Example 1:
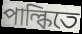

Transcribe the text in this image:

পাল্কিতে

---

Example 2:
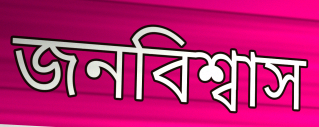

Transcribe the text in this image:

জনবিশ্বাস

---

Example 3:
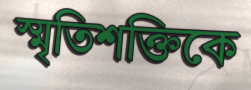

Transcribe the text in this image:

স্মৃতিশক্তিকে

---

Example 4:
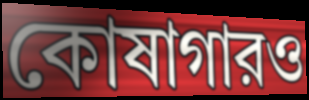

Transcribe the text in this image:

কোষাগারও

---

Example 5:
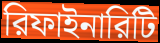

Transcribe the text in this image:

রিফাইনারিটি